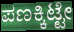
ಪಣಕ್ಕಿಟ್ಟೇ